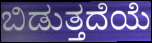
ಬಿಡುತ್ತದೆಯೆ